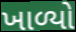
ખાળ્યો